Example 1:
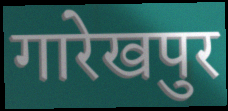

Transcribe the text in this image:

गारेखपुर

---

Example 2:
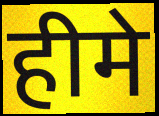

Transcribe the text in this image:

हीमे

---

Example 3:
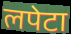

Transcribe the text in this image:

लपेटा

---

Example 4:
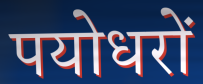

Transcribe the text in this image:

पयोधरों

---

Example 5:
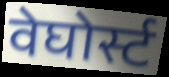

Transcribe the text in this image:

वेघोर्स्ट